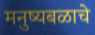
मनुष्यबळाचे